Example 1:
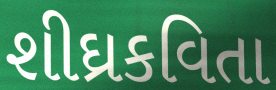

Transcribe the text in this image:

શીઘ્રકવિતા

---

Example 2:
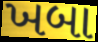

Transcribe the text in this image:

ખબા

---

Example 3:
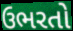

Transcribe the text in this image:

ઉભરતો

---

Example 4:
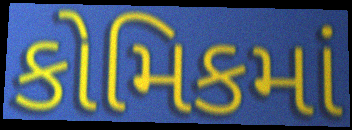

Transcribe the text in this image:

કોમિકમાં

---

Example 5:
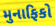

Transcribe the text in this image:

મુનાફિકો